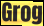
Grog